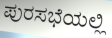
ಪುರಸಭೆಯಲ್ಲಿ